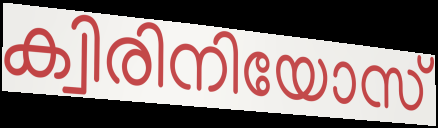
ക്വിരിനിയോസ്